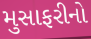
મુસાફરીનો